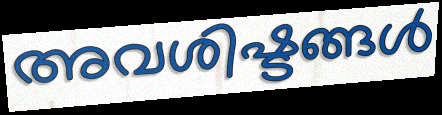
അവശിഷ്ടങ്ങൾ